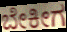
ಬೇಕೀಗ